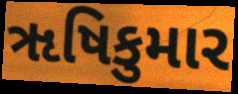
ૠષિકુમાર